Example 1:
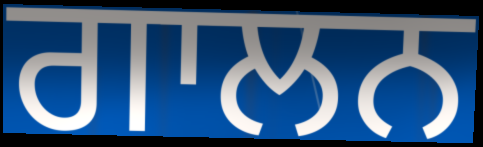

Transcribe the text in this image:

ਗਾਲਨ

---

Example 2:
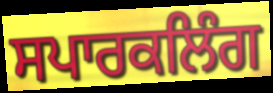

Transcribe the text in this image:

ਸਪਾਰਕਲਿੰਗ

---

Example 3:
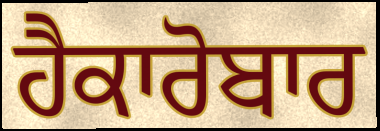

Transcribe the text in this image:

ਹੈਕਾਰੋਬਾਰ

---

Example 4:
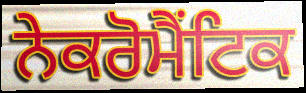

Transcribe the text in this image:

ਨੇਕਰੋਮੈਂਟਿਕ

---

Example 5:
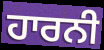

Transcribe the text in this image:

ਹਾਰਨੀ